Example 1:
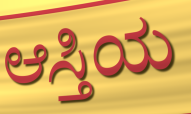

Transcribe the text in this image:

ಆಸ್ತಿಯ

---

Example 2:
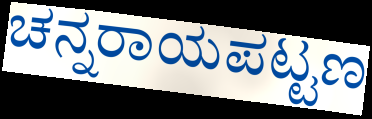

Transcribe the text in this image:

ಚನ್ನರಾಯಪಟ್ಟಣ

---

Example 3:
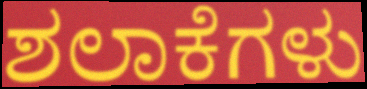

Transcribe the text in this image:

ಶಲಾಕೆಗಳು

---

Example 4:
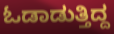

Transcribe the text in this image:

ಓಡಾಡುತ್ತಿದ್ದ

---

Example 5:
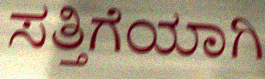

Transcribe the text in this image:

ಸತ್ತಿಗೆಯಾಗಿ